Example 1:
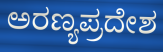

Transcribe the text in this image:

ಅರಣ್ಯಪ್ರದೇಶ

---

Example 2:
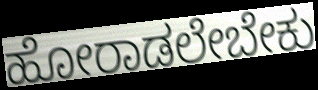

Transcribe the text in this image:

ಹೋರಾಡಲೇಬೇಕು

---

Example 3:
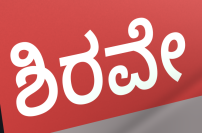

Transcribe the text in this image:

ಶಿರವೇ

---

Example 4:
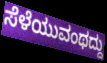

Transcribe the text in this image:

ಸೆಳೆಯುವಂಥದ್ದು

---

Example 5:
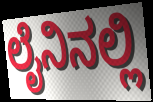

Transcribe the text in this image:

ಲೈನಿನಲ್ಲಿ